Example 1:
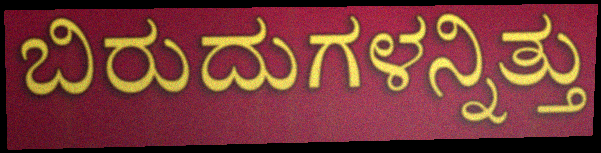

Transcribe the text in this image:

ಬಿರುದುಗಳನ್ನಿತ್ತು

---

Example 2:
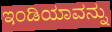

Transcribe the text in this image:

ಇಂಡಿಯಾವನ್ನು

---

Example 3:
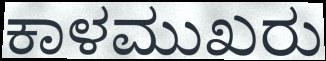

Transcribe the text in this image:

ಕಾಳಮುಖರು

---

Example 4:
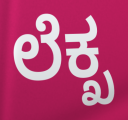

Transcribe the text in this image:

ಲೆಕ್ಖ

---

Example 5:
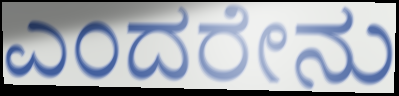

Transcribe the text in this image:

ಎಂದರೇನು